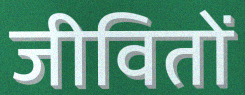
जीवितों